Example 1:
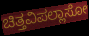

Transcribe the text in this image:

ಚಿತ್ತವಿಪಲ್ಲಾಸೋ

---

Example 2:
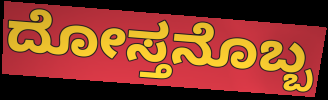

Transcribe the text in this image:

ದೋಸ್ತನೊಬ್ಬ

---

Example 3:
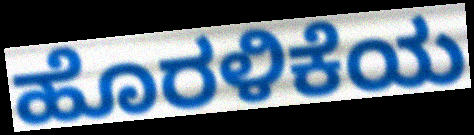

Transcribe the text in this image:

ಹೊರಳಿಕೆಯ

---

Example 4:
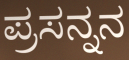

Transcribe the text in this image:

ಪ್ರಸನ್ನನ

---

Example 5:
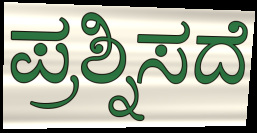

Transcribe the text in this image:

ಪ್ರಶ್ನಿಸದೆ